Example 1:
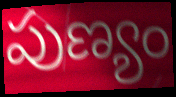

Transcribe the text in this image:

పుణ్యం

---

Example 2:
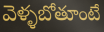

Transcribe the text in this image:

వెళ్ళబోతూంటే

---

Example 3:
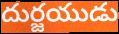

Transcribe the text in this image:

దుర్జయుడు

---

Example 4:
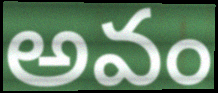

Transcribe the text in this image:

అవం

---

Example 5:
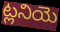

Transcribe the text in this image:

ట్లనియె